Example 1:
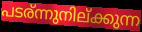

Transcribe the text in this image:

പടര്ന്നുനില്ക്കുന്ന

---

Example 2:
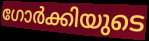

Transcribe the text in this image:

ഗോർക്കിയുടെ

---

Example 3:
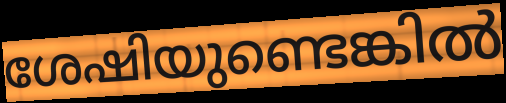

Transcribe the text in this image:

ശേഷിയുണ്ടെങ്കിൽ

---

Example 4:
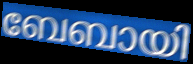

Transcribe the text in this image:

ബേബായി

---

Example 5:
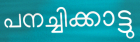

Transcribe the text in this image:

പനച്ചിക്കാട്ടു